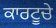
ਕਾਰਟੂਚੇ